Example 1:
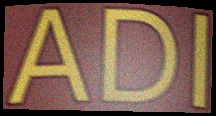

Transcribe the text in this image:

ADI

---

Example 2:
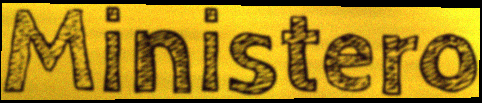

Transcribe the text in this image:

Ministero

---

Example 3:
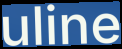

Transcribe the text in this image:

uline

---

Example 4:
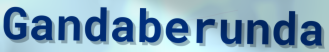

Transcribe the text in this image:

Gandaberunda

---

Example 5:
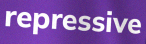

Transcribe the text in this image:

repressive